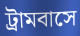
ট্রামবাসে